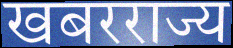
खबरराज्य